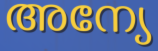
അന്യേ